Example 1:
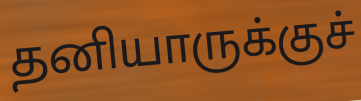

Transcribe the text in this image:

தனியாருக்குச்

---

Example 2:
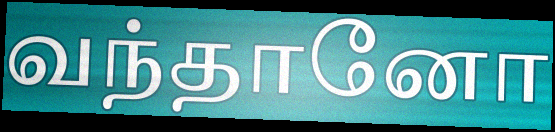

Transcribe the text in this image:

வந்தானோ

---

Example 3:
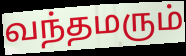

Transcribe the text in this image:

வந்தமரும்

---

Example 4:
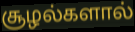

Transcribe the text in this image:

சூழல்களால்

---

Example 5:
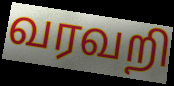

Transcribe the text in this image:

வரவறி